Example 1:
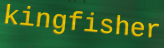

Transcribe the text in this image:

kingfisher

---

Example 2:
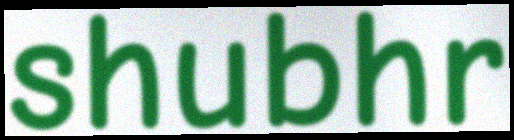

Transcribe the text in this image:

shubhr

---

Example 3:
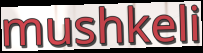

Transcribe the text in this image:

mushkeli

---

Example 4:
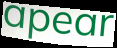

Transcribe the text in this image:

apear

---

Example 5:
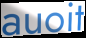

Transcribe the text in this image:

auoit